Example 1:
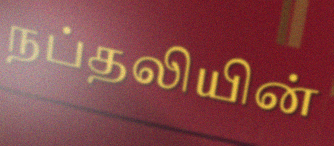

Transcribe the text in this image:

நப்தலியின்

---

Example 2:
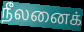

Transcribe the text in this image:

நீலனைக்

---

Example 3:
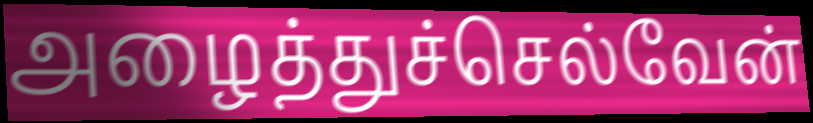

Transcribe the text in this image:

அழைத்துச்செல்வேன்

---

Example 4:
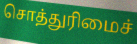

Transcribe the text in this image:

சொத்துரிமைச்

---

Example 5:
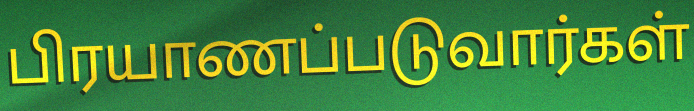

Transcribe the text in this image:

பிரயாணப்படுவார்கள்